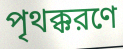
পৃথক্করণে